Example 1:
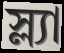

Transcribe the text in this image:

স্ল্যা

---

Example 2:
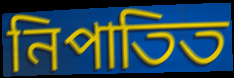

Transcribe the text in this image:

নিপাতিত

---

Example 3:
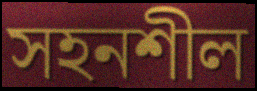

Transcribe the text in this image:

সহনশীল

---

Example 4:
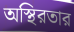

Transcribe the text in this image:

অস্থিরতার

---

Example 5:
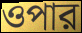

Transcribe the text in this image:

ওপার